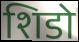
शिडो